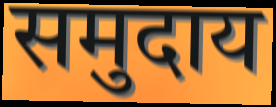
समुदाय